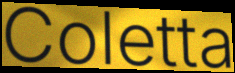
Coletta